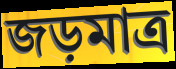
জড়মাত্র